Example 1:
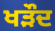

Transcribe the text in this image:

ਖੜੌਦ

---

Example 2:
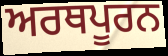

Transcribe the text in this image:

ਅਰਥਪੂਰਨ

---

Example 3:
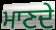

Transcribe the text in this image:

ਮਾਣਦੇ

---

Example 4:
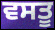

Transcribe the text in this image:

ਵਸਤੂ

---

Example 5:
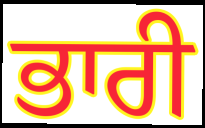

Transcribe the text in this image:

ਭਾਰੀ